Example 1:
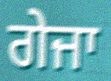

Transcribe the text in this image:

ਗੇਜਾ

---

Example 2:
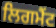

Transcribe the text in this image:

ਲਿਗਮੈਂਟ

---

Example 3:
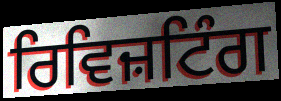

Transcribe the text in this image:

ਰਿਵਿਜ਼ਟਿੰਗ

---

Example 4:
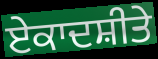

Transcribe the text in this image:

ਏਕਾਦਸ਼ੀਤੇ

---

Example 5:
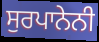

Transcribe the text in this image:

ਸੁਰਪਾਨੇਨੀ